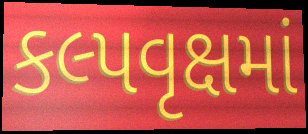
કલ્પવૃક્ષમાં